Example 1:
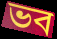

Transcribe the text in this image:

ভব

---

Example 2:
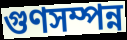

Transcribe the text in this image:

গুণসম্পন্ন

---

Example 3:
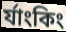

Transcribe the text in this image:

র্যাংকিং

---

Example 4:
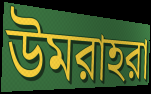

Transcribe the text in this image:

উমরাহরা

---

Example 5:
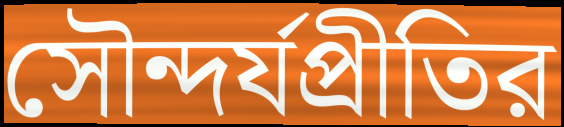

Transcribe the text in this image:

সৌন্দর্যপ্রীতির